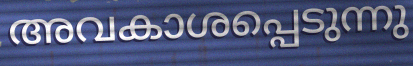
അവകാശപ്പെടുന്നു